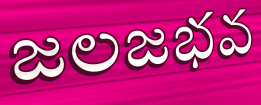
జలజభవ